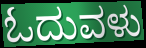
ಓದುವಳು